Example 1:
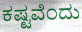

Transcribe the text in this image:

ಕಷ್ಟವೆಂದು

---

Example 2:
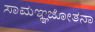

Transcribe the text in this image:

ಸಾಮಞ್ಞಜೋತನಾ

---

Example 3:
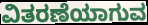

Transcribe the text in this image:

ವಿತರಣೆಯಾಗುವ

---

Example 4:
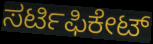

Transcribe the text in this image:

ಸರ್ಟಿಫಿಕೇಟ್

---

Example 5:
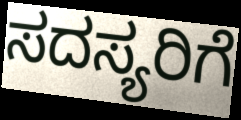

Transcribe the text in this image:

ಸದಸ್ಯರಿಗೆ